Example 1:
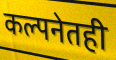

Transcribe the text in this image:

कल्पनेतही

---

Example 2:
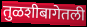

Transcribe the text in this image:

तुळशीबागेतली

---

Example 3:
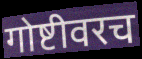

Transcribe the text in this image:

गोष्टीवरच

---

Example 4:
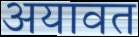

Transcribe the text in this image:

अयावत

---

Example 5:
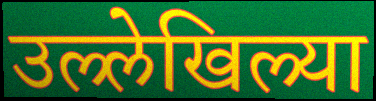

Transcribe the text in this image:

उल्लेखिल्या